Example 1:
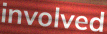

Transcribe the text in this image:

involved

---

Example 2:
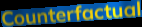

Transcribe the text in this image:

Counterfactual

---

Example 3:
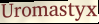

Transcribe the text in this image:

Uromastyx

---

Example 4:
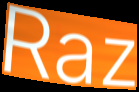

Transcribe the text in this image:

Raz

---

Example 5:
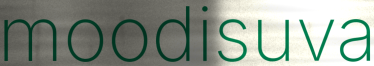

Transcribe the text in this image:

moodisuva